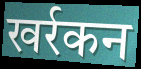
खर्रकन